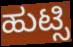
ಹುಟ್ಸಿ